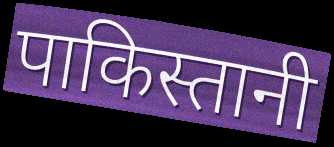
पाकिस्तानी